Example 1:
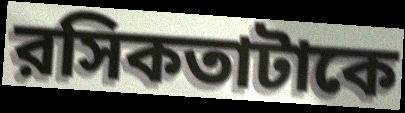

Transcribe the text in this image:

রসিকতাটাকে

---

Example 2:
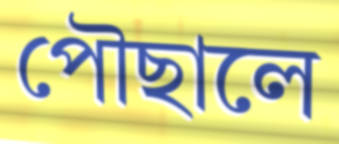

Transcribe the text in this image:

পৌছালে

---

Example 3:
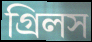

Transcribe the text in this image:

গ্রিলস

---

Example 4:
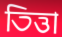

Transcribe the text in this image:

তিত্তা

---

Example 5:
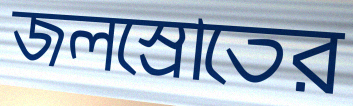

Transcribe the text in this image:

জলস্রোতের